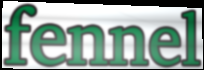
fennel